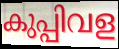
കുപ്പിവള